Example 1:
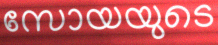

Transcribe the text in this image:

സോയയുടെ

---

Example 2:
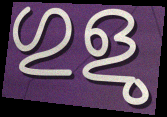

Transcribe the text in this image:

ഗുളു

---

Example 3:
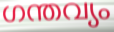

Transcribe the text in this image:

ഗന്തവ്യം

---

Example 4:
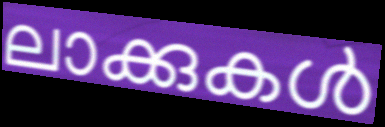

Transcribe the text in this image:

ലാക്കുകൾ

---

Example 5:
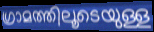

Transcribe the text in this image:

ഗ്രാമത്തിലൂടെയുള്ള